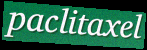
paclitaxel